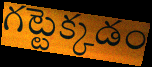
గట్టెక్కడం